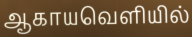
ஆகாயவெளியில்